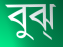
বুঝ্